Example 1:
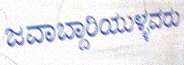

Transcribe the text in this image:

ಜವಾಬ್ದಾರಿಯುಳ್ಳವರು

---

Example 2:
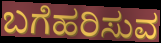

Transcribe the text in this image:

ಬಗೆಹರಿಸುವ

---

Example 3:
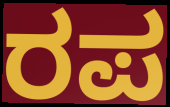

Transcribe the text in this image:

ರಪ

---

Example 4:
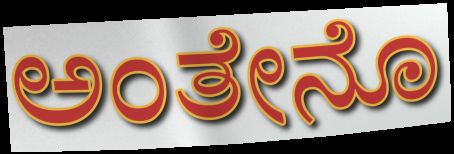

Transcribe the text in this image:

ಅಂತೇನೊ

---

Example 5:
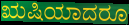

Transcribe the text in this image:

ಋಷಿಯಾದರೂ